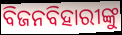
ବିଜନବିହାରୀଙ୍କୁ